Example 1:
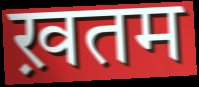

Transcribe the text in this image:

ख़तम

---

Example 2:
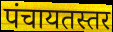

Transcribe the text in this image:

पंचायतस्तर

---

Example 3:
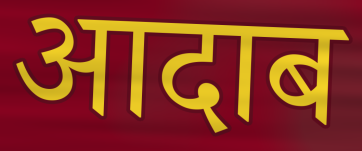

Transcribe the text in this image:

आदाब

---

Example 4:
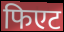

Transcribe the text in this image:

फिएट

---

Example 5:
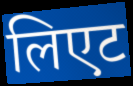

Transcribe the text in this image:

लिएट